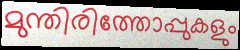
മുന്തിരിത്തോപ്പുകളും